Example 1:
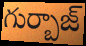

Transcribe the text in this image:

గుర్బాజ్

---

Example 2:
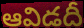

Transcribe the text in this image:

ఆవిడదీ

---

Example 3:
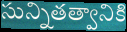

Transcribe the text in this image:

సున్నితత్వానికి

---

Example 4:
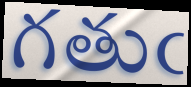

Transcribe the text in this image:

గతుఁ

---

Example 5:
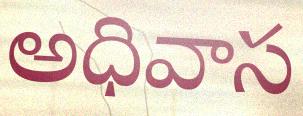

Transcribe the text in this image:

అధివాస